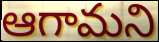
ఆగామని